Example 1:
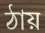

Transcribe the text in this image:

ঠায়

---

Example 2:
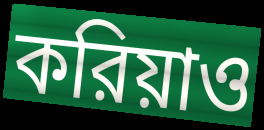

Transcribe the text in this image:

করিয়াও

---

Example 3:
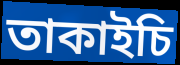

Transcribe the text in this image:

তাকাইচি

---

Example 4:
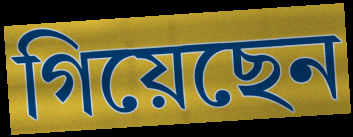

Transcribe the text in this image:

গিয়েছেন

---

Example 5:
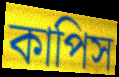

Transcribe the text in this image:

কাপিস